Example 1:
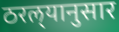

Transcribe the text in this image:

ठरल्यानुसार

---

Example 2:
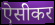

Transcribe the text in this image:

ऐसीकर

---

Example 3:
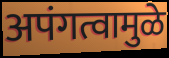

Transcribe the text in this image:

अपंगत्वामुळे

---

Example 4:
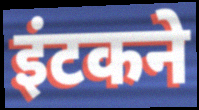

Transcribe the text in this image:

इंटकने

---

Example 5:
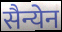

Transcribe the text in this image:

सैन्येन